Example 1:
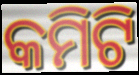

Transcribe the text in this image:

କମିଟି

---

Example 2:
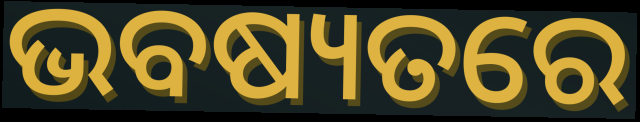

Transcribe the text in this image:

ଭବଷ୍ୟତରେ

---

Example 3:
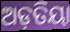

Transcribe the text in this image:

ଅଡ଼ତିୟା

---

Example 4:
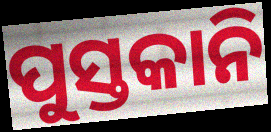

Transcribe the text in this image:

ପୁସ୍ତକାନି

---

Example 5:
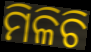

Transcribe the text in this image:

ମିଳିଚି